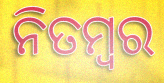
ନିତମ୍ୱର